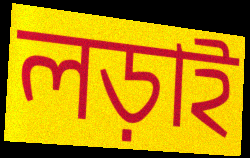
লড়াই